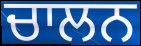
ਚਾਲਨ